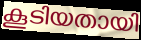
കൂടിയതായി